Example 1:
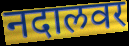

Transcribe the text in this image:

नदालवर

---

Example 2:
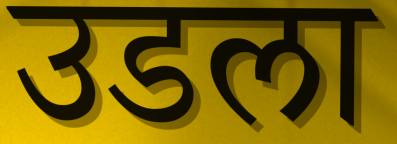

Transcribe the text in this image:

उडला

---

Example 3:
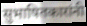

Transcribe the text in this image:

सुभाषितकारांनी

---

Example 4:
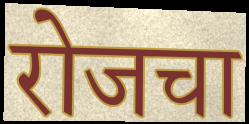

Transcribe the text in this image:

रोजचा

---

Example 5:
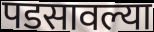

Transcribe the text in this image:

पडसावल्या